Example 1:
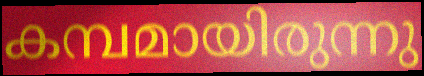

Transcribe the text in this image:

കമ്പമായിരുന്നു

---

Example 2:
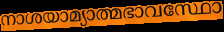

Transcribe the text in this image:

നാശയാമ്യാത്മഭാവസ്ഥോ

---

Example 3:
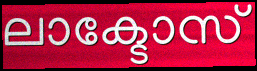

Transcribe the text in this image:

ലാക്ടോസ്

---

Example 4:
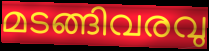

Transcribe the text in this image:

മടങ്ങിവരവു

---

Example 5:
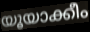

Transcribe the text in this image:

യൂയാക്കീം